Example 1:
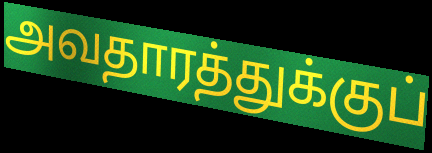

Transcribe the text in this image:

அவதாரத்துக்குப்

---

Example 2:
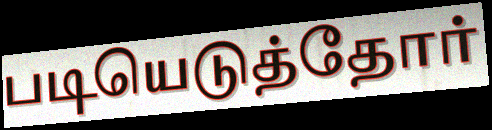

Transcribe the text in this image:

படியெடுத்தோர்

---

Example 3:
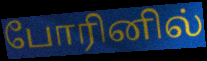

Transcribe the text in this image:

போரினில்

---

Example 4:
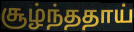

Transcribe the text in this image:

சூழ்ந்ததாய்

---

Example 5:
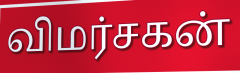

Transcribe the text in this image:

விமர்சகன்